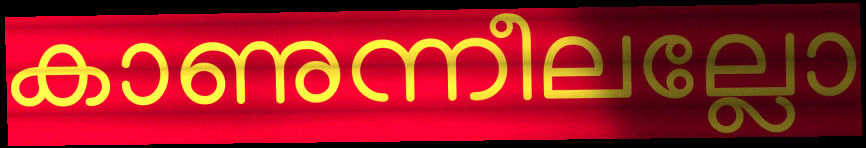
കാണുന്നീലല്ലോ